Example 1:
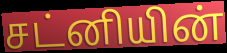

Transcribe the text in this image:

சட்னியின்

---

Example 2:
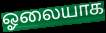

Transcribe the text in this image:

ஓலையாக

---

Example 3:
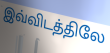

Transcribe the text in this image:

இவ்விடத்திலே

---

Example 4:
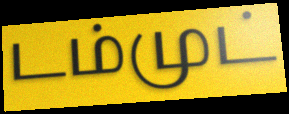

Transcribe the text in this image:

டம்முட்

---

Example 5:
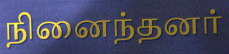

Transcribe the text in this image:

நினைந்தனர்